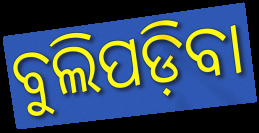
ବୁଲିପଡ଼ିବା